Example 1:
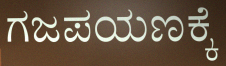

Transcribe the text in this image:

ಗಜಪಯಣಕ್ಕೆ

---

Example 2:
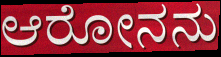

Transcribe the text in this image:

ಆರೋನನು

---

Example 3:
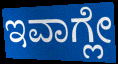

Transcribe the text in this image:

ಇವಾಗ್ಲೇ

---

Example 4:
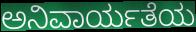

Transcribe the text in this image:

ಅನಿವಾರ್ಯತೆಯ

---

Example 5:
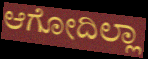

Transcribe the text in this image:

ಆಗೋದಿಲ್ಲಾ